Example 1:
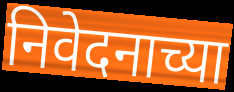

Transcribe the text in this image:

निवेदनाच्या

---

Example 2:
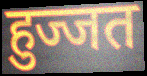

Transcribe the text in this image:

हुज्जत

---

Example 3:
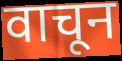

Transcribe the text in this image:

वाचून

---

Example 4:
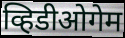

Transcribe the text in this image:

व्हिडीओगेम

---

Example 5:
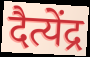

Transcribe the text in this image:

दैत्येंद्र